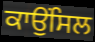
ਕਾਉਂਸਿਲ